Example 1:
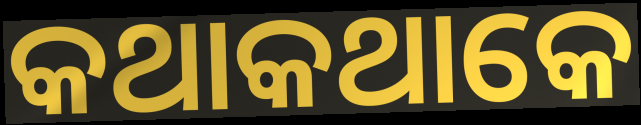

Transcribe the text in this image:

କଥାକଥାକେ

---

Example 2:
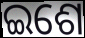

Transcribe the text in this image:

ଇଶେ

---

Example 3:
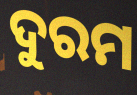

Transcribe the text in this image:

ଦୁରମ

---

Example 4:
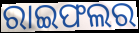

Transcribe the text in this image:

ରାଇଫଲର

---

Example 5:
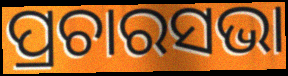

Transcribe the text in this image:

ପ୍ରଚାରସଭା